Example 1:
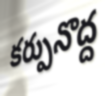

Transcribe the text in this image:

కర్పునొద్ద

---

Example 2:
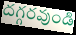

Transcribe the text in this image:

దగ్గరవుండి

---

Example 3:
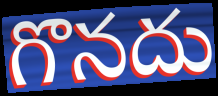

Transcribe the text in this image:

గొనదు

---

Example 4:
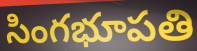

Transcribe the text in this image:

సింగభూపతి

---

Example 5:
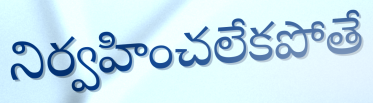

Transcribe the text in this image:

నిర్వహించలేకపోతే